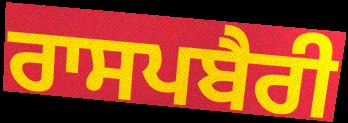
ਰਾਸਪਬੈਰੀ